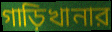
গাড়িখানার